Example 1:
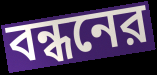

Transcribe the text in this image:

বন্ধনের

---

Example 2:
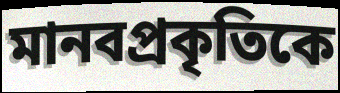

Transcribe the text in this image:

মানবপ্রকৃতিকে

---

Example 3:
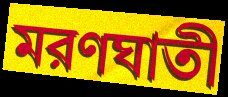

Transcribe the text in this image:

মরণঘাতী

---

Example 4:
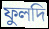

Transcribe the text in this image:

ফুলদি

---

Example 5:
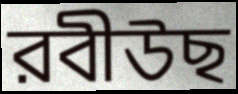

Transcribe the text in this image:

রবীউছ